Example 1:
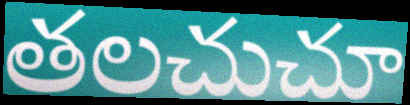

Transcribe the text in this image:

తలచుచూ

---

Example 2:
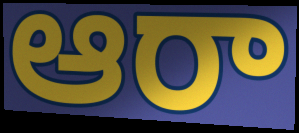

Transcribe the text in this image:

ఆరా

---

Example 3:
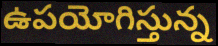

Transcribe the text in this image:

ఉపయోగిస్తున్న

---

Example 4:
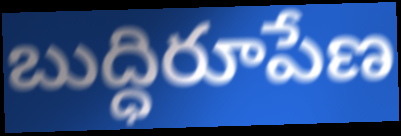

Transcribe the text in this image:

బుద్ధిరూపేణ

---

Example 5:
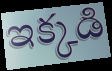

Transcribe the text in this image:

ఇక్కడి